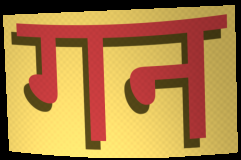
गन